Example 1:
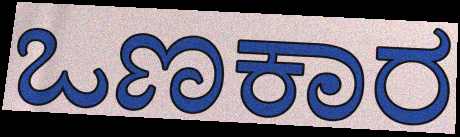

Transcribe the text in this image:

ಒಣಕಾರ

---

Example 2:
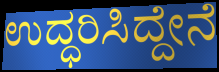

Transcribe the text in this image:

ಉದ್ಧರಿಸಿದ್ದೇನೆ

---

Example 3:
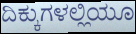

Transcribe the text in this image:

ದಿಕ್ಕುಗಳಲ್ಲಿಯೂ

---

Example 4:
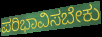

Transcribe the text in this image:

ಪರಿಭಾವಿಸಬೇಕು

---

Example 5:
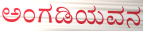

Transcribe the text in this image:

ಅಂಗಡಿಯವನ